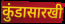
कुंडासारखी